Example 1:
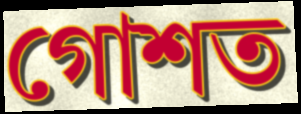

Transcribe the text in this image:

গোশত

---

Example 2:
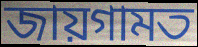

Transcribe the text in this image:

জায়গামত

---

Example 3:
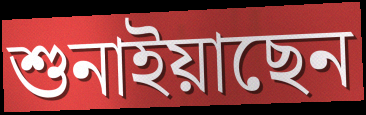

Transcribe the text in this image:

শুনাইয়াছেন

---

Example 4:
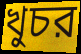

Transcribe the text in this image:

খুচর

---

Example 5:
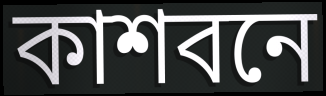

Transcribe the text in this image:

কাশবনে